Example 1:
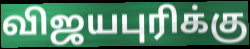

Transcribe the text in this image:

விஜயபுரிக்கு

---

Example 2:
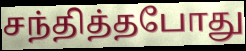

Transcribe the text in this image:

சந்தித்தபோது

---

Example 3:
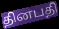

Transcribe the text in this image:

தினபதி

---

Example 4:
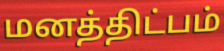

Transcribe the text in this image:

மனத்திட்பம்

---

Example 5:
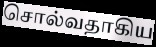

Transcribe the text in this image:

சொல்வதாகிய